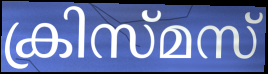
ക്രിസ്മസ്